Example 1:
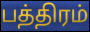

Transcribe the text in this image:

பத்திரம்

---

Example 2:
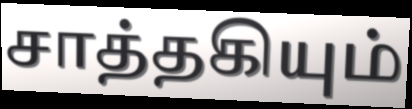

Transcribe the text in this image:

சாத்தகியும்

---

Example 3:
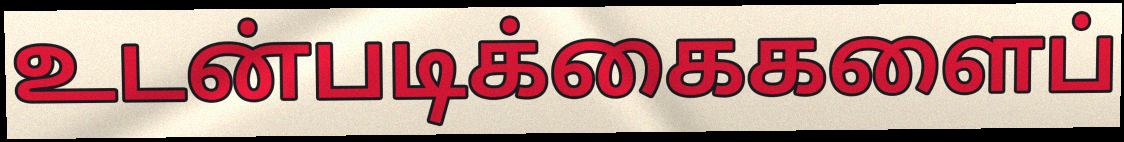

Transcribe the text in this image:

உடன்படிக்கைகளைப்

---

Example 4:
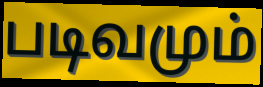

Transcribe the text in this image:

படிவமும்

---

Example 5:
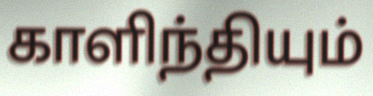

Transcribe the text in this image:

காளிந்தியும்